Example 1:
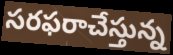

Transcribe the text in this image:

సరఫరాచేస్తున్న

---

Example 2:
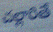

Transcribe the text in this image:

చల్లారితే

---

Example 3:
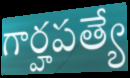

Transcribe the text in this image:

గార్హపత్యే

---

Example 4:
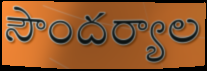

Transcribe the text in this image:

సౌందర్యాల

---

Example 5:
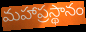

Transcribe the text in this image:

మహాప్రస్థానం